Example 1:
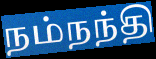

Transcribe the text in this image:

நம்நந்தி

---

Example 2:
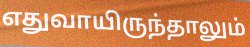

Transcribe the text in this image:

எதுவாயிருந்தாலும்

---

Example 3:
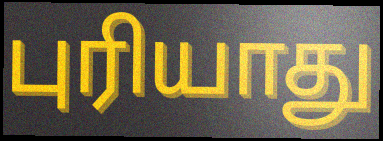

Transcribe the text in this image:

புரியாது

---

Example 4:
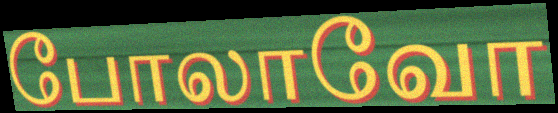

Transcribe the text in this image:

போலாவோ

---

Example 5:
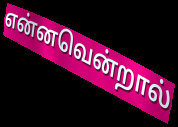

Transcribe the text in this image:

என்னவென்றால்